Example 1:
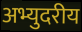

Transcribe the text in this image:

अभ्युदरीय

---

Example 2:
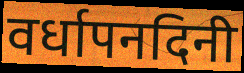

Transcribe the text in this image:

वर्धापनदिनी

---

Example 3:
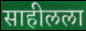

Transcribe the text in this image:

साहीलला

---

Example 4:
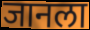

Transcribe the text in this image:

जानला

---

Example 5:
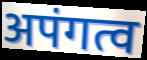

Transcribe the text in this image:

अपंगत्व